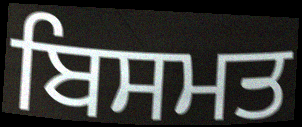
ਬਿਸਮਤ